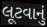
લૂટવાનું